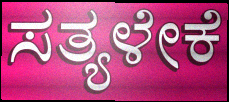
ಸತ್ಯಳೇಕೆ